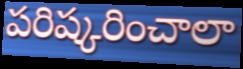
పరిష్కరించాలా